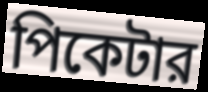
পিকেটার